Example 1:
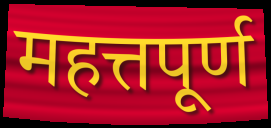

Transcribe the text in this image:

महत्तपूर्ण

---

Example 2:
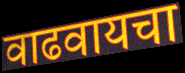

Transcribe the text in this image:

वाढवायचा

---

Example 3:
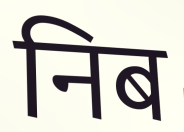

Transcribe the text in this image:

निब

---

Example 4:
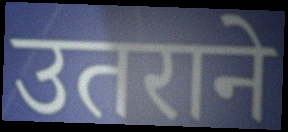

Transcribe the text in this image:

उतराने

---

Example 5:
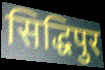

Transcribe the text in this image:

सिद्धिपुर